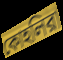
কোহলিরা